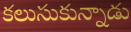
కలుసుకున్నాడు